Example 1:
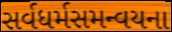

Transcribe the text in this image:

સર્વધર્મસમન્વયના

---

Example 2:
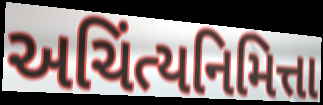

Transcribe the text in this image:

અચિંત્યનિમિત્તા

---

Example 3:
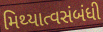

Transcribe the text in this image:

મિથ્યાત્વસંબંધી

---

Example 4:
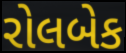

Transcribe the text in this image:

રોલબેક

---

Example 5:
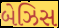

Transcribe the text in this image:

બેઝિસ